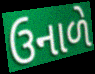
ઉનાળે